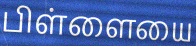
பிள்ளையை